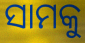
ସାମକୁ